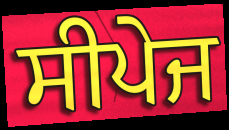
ਸੀਪੇਜ